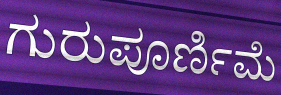
ಗುರುಪೂರ್ಣಿಮೆ